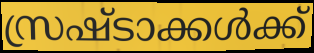
സ്രഷ്ടാക്കൾക്ക്